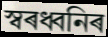
স্বৰধ্বনিৰ